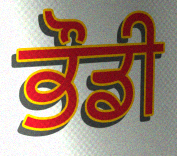
ਭੌਡੀ